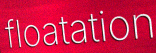
floatation